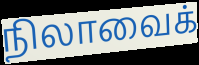
நிலாவைக்